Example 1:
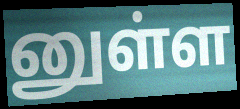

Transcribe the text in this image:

னுள்ள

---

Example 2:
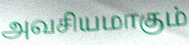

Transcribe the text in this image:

அவசியமாகும்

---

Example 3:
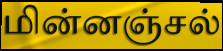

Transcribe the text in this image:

மின்னஞ்சல்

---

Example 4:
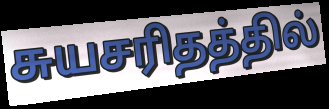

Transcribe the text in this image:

சுயசரிதத்தில்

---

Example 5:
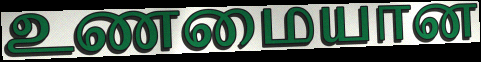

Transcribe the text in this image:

உணமையான